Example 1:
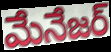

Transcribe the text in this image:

మేనేజర్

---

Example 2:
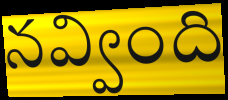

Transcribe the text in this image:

నవ్వింది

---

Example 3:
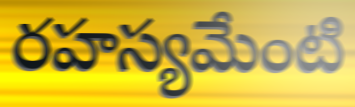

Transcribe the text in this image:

రహస్యమేంటి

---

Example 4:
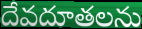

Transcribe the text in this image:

దేవదూతలను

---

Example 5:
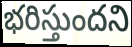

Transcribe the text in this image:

భరిస్తుందని